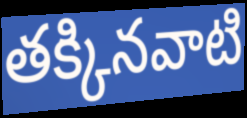
తక్కినవాటి